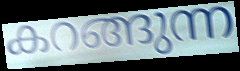
കറങ്ങുന്ന